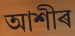
আশীৰ